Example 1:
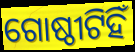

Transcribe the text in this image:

ଗୋଷ୍ଠୀଟିହିଁ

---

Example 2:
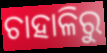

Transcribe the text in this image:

ଚାହାଳିରୁ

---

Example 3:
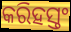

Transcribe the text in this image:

କରିହସ୍ତଂ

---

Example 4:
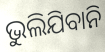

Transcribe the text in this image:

ଭୁଲିଯିବାନି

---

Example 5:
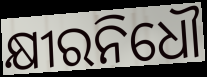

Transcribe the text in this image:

କ୍ଷୀରନିଧୌ